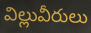
విల్లువీరులు